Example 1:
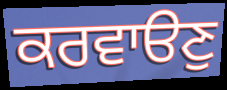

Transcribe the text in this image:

ਕਰਵਾੳਣੁ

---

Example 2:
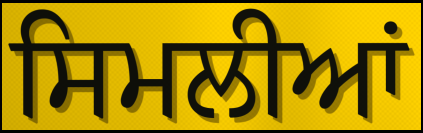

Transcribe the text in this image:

ਸਿਮਲੀਆਂ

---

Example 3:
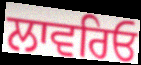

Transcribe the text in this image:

ਲਾਵਰਿਓ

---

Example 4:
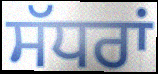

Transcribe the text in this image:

ਸੱਧਰਾਂ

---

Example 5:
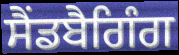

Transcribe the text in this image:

ਸੈਂਡਬੈਗਿੰਗ